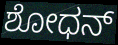
ಶೋಧನ್